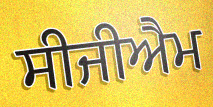
ਸੀਜੀਐਮ